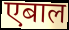
एबाल